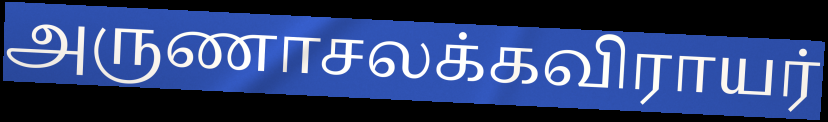
அருணாசலக்கவிராயர்